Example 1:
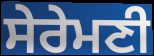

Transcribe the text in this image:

ਸੇਰੇਮਣੀ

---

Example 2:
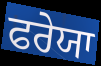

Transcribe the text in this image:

ਫਰੇਯਾ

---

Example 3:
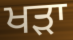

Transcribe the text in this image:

ਖਡ਼ਾ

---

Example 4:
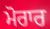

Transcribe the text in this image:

ਮੋਰਾਰ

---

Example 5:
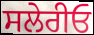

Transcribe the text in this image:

ਸਲੇਰੀਓ